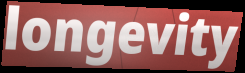
longevity